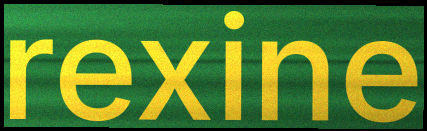
rexine